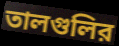
তালগুলির